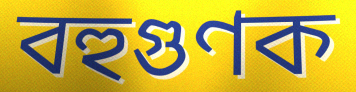
বহুগুণক